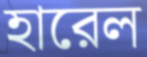
হারেল